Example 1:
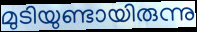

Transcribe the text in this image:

മുടിയുണ്ടായിരുന്നു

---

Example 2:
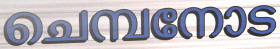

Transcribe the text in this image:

ചെമ്പനോട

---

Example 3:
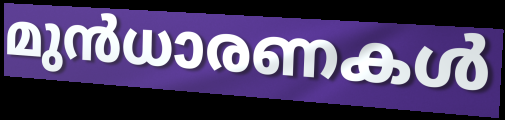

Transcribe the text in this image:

മുൻധാരണകൾ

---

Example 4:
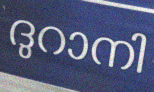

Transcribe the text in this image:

ദുറാനി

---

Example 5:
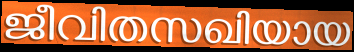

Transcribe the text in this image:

ജീവിതസഖിയായ